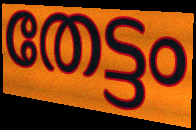
തേട്ടം